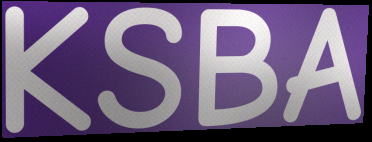
KSBA